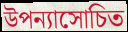
উপন্যাসোচিত